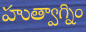
హుత్వాగ్నిం